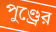
পুণ্ড্রের